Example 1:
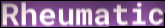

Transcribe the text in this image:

Rheumatic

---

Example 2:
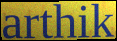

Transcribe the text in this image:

arthik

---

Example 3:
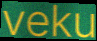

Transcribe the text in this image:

veku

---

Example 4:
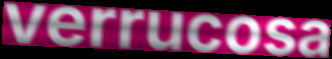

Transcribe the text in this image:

verrucosa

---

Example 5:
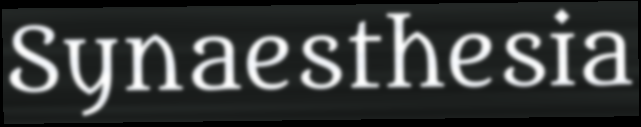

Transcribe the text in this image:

Synaesthesia